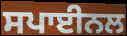
ਸਪਾਈਨਲ